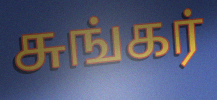
சுங்கர்